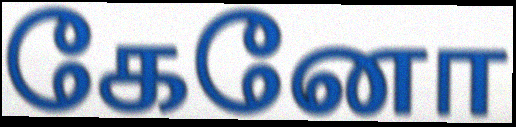
கேனோ